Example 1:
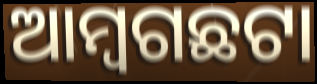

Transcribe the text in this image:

ଆମ୍ବଗଛଟା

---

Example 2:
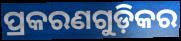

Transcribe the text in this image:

ପ୍ରକରଣଗୁଡ଼ିକର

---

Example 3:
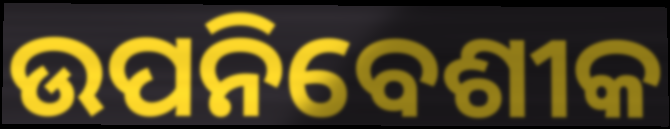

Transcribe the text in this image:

ଉପନିବେଶୀକ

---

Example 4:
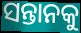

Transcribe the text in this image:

ସନ୍ତାନକୁ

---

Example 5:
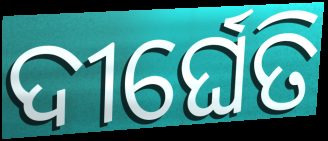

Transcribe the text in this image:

ଦୀର୍ଘେତି